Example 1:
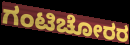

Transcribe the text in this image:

ಗಂಟಿಚೋರರ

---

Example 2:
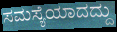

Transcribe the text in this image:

ಸಮಸ್ಯೆಯಾದದ್ದು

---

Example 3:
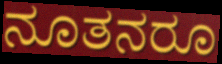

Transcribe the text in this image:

ನೂತನರೂ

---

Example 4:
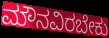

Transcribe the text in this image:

ಮೌನವಿರಬೇಕು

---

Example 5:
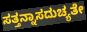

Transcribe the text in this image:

ಸತ್ತನ್ನಾಸದುಚ್ಯತೇ